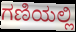
ಗಣಿಯಲ್ಲಿ